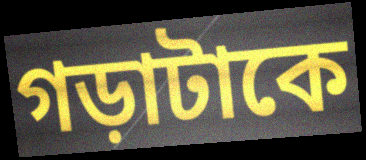
গড়াটাকে